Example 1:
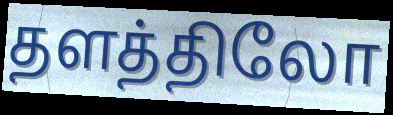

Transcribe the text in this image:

தளத்திலோ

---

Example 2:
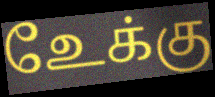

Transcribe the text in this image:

உேக்கு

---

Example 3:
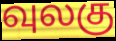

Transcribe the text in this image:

வுலகு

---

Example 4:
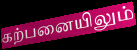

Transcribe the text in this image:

கற்பனையிலும்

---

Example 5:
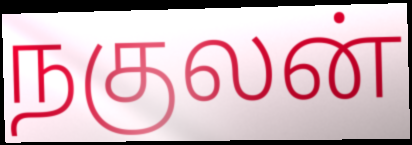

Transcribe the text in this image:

நகுலன்